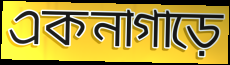
একনাগাড়ে